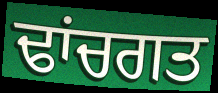
ਢਾਂਚਗਤ